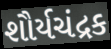
શૌર્યચંદ્રક